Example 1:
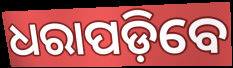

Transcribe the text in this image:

ଧରାପଡ଼ିବେ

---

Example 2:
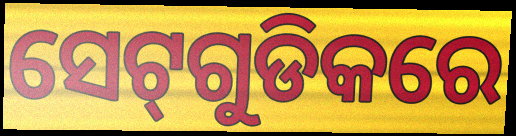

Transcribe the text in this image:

ସେଟ୍‌ଗୁଡିକରେ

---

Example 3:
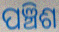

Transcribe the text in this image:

ପଞ୍ଚିଶ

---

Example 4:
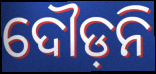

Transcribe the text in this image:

ଦୌଡ଼ନି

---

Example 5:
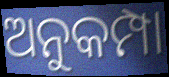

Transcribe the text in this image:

ଅନୁକମ୍ପା